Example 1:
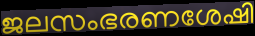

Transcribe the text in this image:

ജലസംഭരണശേഷി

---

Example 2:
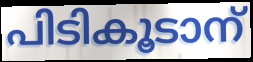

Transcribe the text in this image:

പിടികൂടാന്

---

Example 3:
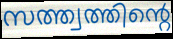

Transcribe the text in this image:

സത്ത്വത്തിന്റെ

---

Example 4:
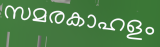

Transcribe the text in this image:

സമരകാഹളം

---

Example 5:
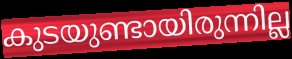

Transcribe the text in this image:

കുടയുണ്ടായിരുന്നില്ല